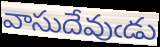
వాసుదేవుఁడు